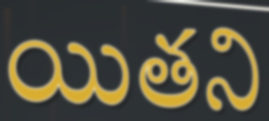
యితని